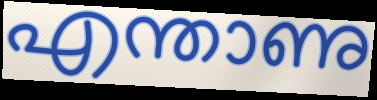
എന്താണു